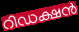
റിഡക്ഷൻ